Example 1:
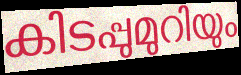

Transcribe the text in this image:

കിടപ്പുമുറിയും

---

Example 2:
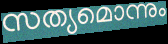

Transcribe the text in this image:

സത്യമൊന്നും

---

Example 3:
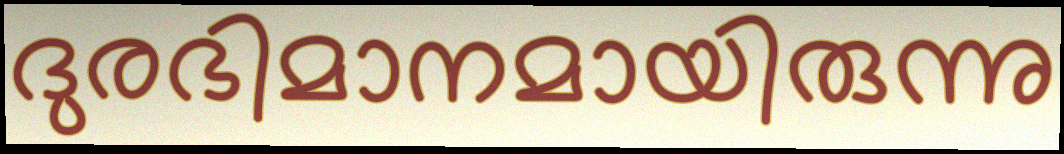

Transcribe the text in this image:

ദുരഭിമാനമായിരുന്നു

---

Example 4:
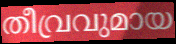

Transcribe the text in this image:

തീവ്രവുമായ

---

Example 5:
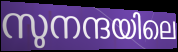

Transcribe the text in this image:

സുനന്ദയിലെ